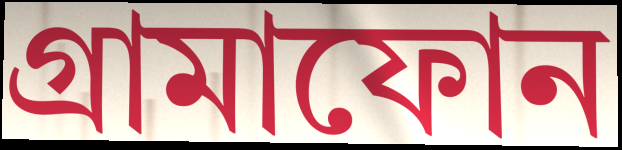
গ্রামাফোন